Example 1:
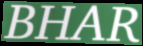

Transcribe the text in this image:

BHAR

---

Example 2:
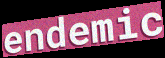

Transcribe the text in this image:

endemic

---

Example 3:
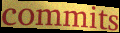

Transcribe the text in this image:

commits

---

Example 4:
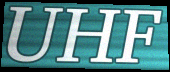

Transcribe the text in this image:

UHF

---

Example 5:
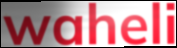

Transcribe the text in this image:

waheli